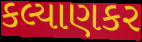
કલ્યાણકર